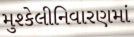
મુશ્કેલીનિવારણમાં